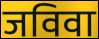
जविवा